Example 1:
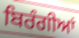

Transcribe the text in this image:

ਬਿਰੰਗੀਆਂ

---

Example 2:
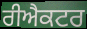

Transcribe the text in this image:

ਰੀਐਕਟਰ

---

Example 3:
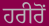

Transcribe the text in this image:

ਹਰੀਰੋਂ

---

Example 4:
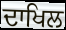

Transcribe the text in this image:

ਦਾਖਿਲ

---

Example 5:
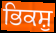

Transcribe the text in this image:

ਭਿਕਸ਼ੁ